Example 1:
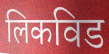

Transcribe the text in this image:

लिकविड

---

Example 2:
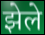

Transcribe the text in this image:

झेले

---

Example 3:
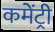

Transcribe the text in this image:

कमेंट्री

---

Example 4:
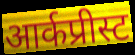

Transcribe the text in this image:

आर्कप्रीस्ट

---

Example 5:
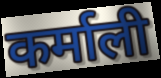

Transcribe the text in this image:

कर्माली